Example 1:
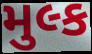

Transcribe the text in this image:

મુલ્ક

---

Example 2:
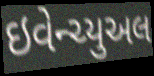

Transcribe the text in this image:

ઇવેન્ચ્યુઅલ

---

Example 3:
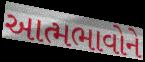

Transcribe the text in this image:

આત્મભાવોને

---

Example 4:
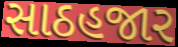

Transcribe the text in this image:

સાઠહજાર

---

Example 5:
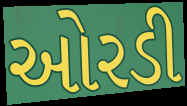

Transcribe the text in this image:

ઓરડી